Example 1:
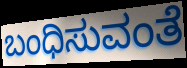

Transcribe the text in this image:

ಬಂಧಿಸುವಂತೆ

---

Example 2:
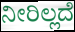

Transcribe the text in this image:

ನೀರಿಲ್ಲದೆ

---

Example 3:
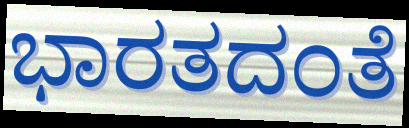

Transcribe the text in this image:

ಭಾರತದಂತೆ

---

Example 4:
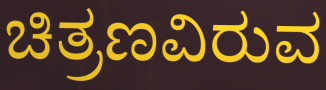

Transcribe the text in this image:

ಚಿತ್ರಣವಿರುವ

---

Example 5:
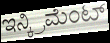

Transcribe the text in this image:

ಇನ್ಕ್ರಿಮೆಂಟ್